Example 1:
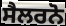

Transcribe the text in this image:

ਸੈਲਰਨੋ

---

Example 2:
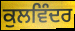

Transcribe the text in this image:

ਕੁਲਵਿੰਦਰ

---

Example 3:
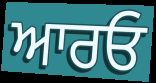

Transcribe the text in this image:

ਆਰਓ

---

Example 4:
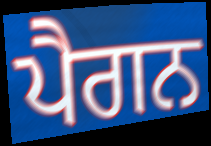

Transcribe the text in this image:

ਪੈਗਨ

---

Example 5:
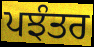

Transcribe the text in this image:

ਪਝੰਤਰ